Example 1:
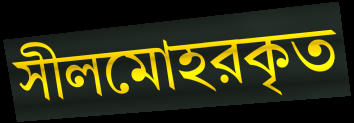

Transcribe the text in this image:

সীলমোহরকৃত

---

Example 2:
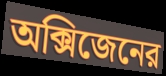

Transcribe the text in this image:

অক্সিজেনের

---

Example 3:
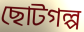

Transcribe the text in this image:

ছোটগল্প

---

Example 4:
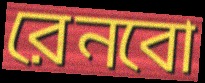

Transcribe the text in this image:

রেনবো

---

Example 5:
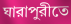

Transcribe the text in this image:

ঘারাপুরীতে